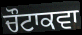
ਚੌਟਾਕਵਾ